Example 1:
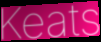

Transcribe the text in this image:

Keats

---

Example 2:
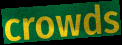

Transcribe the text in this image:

crowds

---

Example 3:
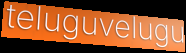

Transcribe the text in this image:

teluguvelugu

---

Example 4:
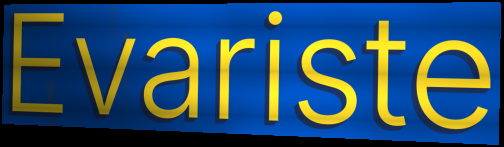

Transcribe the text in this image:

Evariste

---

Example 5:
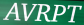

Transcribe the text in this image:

AVRPT